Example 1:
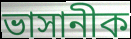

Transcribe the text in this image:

ভাসানীক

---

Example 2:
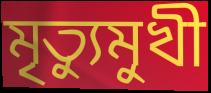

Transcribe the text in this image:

মৃত্যুমুখী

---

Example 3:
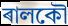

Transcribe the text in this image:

ৰালকৌ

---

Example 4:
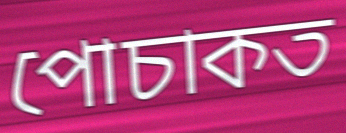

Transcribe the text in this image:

পোচাকত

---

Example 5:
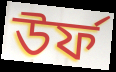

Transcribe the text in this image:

উৰ্ফ